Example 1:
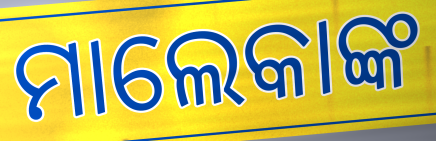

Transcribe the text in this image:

ମାଲେକାଙ୍କ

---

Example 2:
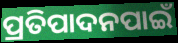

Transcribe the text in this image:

ପ୍ରତିପାଦନପାଇଁ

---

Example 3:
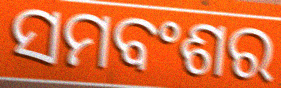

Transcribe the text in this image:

ସମବଂଶର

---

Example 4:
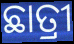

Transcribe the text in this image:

ଛାତ୍ରୀ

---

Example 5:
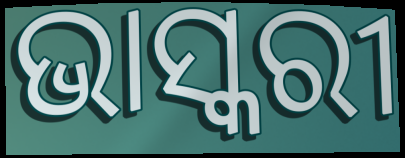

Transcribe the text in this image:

ଭାସ୍କରୀ